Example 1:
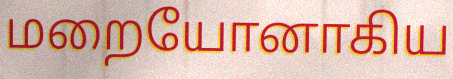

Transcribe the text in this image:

மறையோனாகிய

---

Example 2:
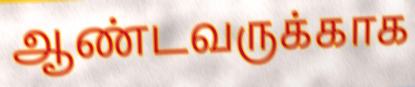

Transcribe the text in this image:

ஆண்டவருக்காக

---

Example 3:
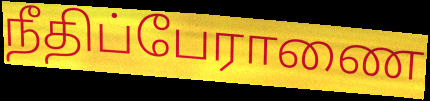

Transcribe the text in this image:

நீதிப்பேராணை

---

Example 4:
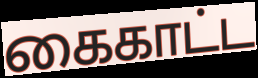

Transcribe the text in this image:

கைகாட்ட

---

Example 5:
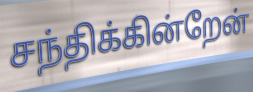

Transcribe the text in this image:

சந்திக்கின்றேன்